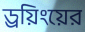
ড্রয়িংয়ের